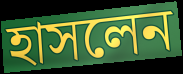
হাসলেন